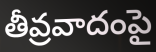
తీవ్రవాదంపై